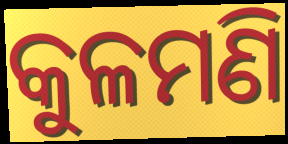
କୁଳମଣି